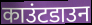
काउंटडाउन